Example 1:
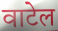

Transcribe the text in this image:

वाटेल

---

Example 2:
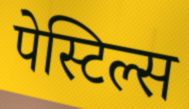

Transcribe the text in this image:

पेस्टिल्स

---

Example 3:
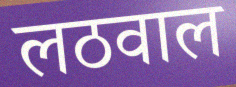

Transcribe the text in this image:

लठवाल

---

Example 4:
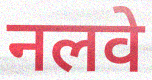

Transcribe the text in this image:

नलवे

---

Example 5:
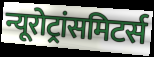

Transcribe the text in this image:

न्यूरोट्रांसमिटर्स